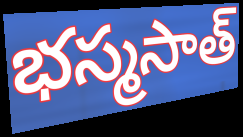
భస్మసాత్